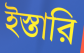
ইস্তারি